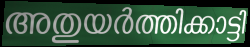
അതുയർത്തിക്കാട്ടി